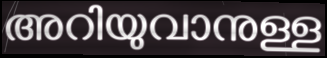
അറിയുവാനുള്ള